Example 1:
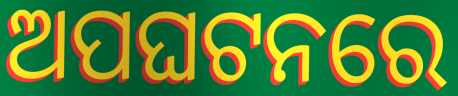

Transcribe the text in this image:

ଅପଘଟନରେ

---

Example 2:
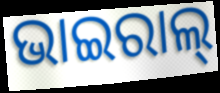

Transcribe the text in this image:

ଭାଇରାଲ୍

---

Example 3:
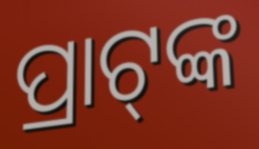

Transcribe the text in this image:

ପ୍ରାଟ୍‍ଙ୍କ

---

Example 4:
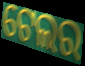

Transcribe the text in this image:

ଟେଲର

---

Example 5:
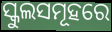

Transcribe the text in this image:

ସ୍କୁଲସମୂହରେ